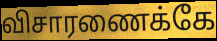
விசாரணைக்கே